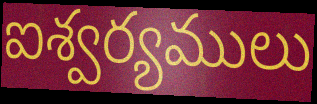
ఐశ్వర్యములు